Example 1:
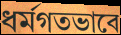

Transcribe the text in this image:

ধর্মগতভাবে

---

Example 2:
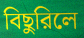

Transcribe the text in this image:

বিছুরিলে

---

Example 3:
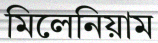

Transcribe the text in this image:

মিলেনিয়াম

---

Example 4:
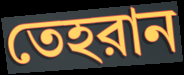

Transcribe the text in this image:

তেহরান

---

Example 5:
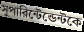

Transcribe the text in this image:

সুপারিন্টেন্ডেন্টকে